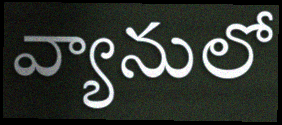
వ్యానులో